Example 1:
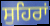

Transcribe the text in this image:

ਸੁਹਿਰਾਂ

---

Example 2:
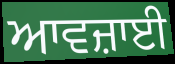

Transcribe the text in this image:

ਆਵਜ਼ਾਈ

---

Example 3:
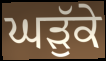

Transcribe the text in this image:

ਘੜੁੱਕੇ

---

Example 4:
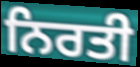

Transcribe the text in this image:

ਨਿਰਤੀ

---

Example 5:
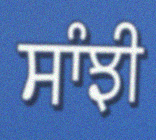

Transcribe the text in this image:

ਸਾੰਝੀ